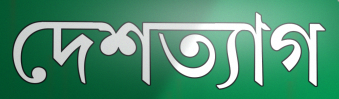
দেশত্যাগ